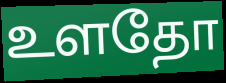
உளதோ